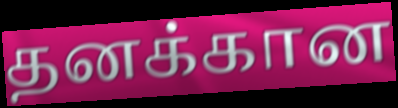
தனக்கான